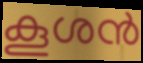
കൂശൻ